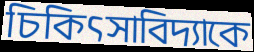
চিকিৎসাবিদ্যাকে